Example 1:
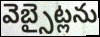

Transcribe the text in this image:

వెబ్సైట్లను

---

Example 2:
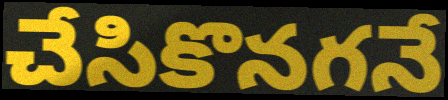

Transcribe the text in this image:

చేసికొనగనే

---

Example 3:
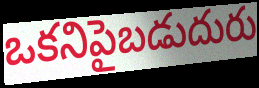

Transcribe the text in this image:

ఒకనిపైబడుదురు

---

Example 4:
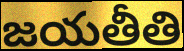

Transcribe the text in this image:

జయతీతి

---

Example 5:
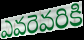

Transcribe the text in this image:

ఎవరెవరికి